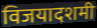
विजयादशमी